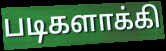
படிகளாக்கி